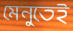
মেনুতেই